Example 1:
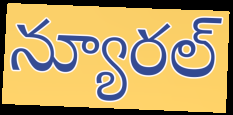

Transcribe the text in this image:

న్యూరల్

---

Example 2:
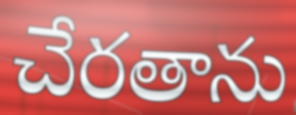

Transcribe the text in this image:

చేరతాను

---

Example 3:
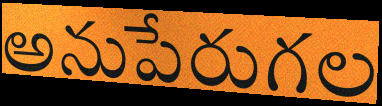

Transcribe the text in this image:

అనుపేరుగల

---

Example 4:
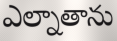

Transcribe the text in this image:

ఎల్నాతాను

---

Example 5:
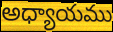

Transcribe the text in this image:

అధ్యాయము